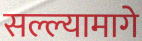
सल्ल्यामागे